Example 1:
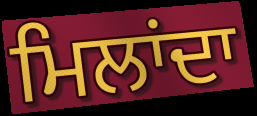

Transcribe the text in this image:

ਮਿਲਾਂਦਾ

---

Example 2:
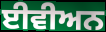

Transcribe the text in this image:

ਈਵੀਅਨ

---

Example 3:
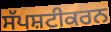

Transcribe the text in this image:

ਸੱਪਸ਼ਟੀਕਰਨ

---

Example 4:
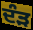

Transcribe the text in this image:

ਦੰੜ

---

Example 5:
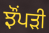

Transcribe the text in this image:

ਝੌਂਪੜੀ